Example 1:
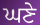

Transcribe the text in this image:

ਘਣੇ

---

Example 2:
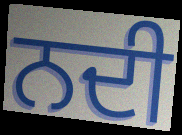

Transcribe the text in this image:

ਨਦੀ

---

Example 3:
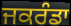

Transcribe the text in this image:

ਜਕਰੰਡਾ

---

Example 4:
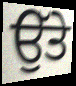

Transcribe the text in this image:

ਉੱਤੇ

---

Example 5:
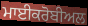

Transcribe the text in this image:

ਮਾਈਕਰੋਬੀਅਲ